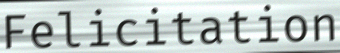
Felicitation